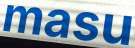
masu